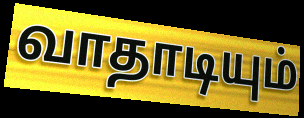
வாதாடியும்